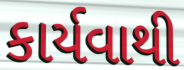
કાર્યવાથી